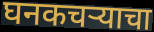
घनकचऱ्याचा